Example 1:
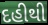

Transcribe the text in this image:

દહીથી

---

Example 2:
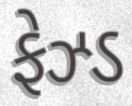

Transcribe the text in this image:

ફેઝ્ડ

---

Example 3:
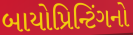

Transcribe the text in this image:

બાયોપ્રિન્ટિંગનો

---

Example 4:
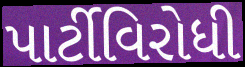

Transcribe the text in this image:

પાર્ટીવિરોધી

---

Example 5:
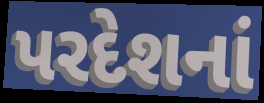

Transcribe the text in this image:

પરદેશનાં